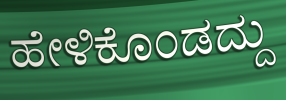
ಹೇಳಿಕೊಂಡದ್ದು